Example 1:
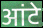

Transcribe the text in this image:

आंटे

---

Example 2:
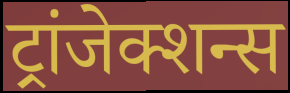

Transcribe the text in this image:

ट्रांजेक्शन्स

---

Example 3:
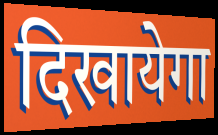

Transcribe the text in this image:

दिखायेगा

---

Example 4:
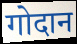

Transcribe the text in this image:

गोदान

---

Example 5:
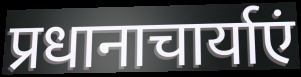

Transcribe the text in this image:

प्रधानाचार्याएं